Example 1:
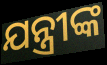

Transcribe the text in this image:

ଯନ୍ତ୍ରୀଙ୍କ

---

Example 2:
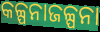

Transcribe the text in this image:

କଳ୍ପନାଜଳ୍ପନା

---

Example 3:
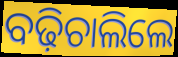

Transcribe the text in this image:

ବଢ଼ିଚାଲିଲେ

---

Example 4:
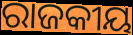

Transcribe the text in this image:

ରାଜକୀୟ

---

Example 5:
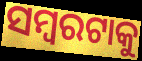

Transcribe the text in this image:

ସମ୍ବରଟାକୁ